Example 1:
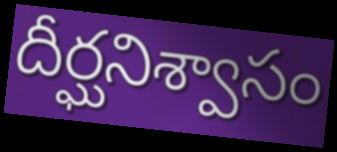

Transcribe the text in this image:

దీర్ఘనిశ్వాసం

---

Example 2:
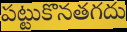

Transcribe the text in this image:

పట్టుకొనతగదు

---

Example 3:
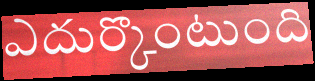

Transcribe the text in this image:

ఎదుర్కొంటుంది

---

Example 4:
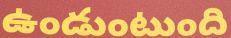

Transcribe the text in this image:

ఉండుంటుంది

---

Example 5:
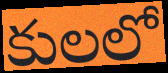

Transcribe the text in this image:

కులలో